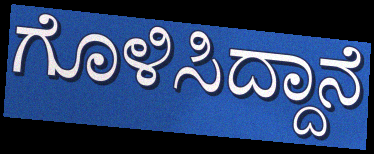
ಗೊಳಿಸಿದ್ದಾನೆ